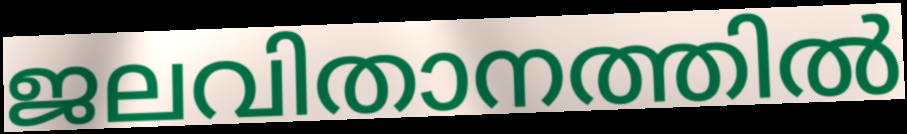
ജലവിതാനത്തിൽ